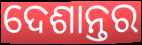
ଦେଶାନ୍ତର